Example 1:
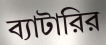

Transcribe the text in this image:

ব্যাটারির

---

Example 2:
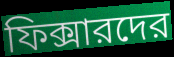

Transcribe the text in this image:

ফিক্সারদের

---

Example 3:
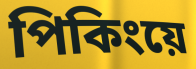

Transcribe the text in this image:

পিকিংয়ে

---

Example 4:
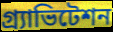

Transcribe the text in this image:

গ্র্যাভিটেশন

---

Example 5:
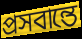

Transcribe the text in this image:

প্রসবান্তে